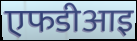
एफडीआइ